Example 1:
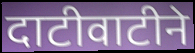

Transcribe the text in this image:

दाटीवाटीने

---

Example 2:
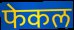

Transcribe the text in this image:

फेकल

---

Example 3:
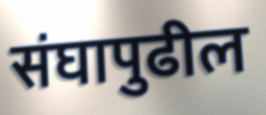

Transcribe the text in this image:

संघापुढील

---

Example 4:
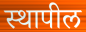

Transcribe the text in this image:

स्थापील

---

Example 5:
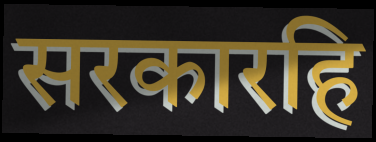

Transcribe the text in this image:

सरकारहि